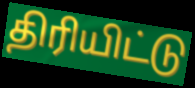
திரியிட்டு